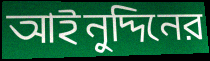
আইনুদ্দিনের